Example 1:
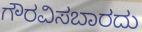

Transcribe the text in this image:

ಗೌರವಿಸಬಾರದು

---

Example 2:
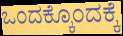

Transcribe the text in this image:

ಒಂದಕ್ಕೊಂದಕ್ಕೆ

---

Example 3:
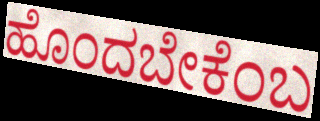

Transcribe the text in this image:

ಹೊಂದಬೇಕೆಂಬ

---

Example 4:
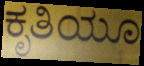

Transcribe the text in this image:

ಕೃತಿಯೂ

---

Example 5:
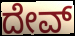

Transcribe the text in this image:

ದೇವ್